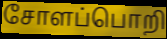
சோளப்பொறி